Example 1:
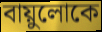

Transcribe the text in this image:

বায়ুলোকে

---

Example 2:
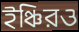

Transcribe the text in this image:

ইঞ্চিরও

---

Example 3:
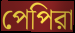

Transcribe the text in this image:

পেপিরা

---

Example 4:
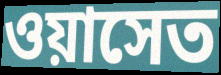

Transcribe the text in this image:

ওয়াসেত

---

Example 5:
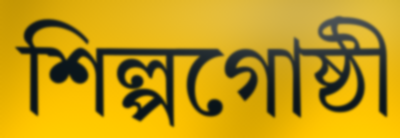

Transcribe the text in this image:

শিল্পগোষ্ঠী